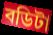
বডিটা